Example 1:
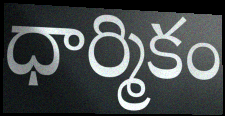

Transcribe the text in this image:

ధార్మికం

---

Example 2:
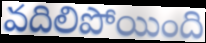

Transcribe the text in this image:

వదిలిపోయింది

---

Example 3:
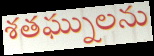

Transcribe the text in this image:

శతఘ్నులను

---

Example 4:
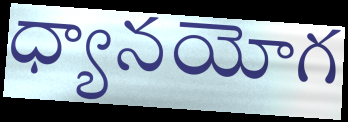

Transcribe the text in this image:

ధ్యానయోగ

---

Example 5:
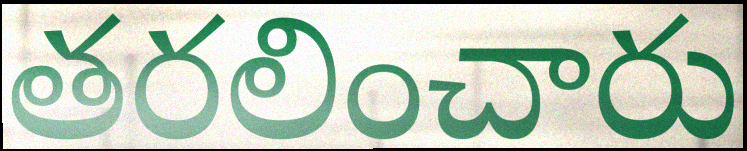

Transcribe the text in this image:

తరలించారు